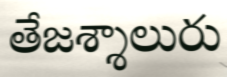
తేజశ్శాలురు